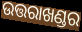
ଉତ୍ତରାଖଣ୍ଡର